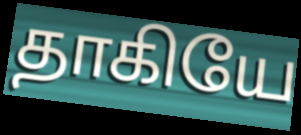
தாகியே